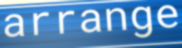
arrange